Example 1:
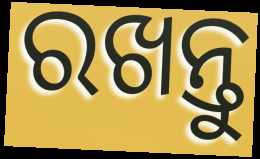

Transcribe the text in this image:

ରଖନ୍ତୁ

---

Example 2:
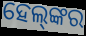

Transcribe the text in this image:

ହେଲ୍‌ଙ୍କର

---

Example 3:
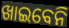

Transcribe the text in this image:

ଖାଇବେନି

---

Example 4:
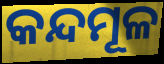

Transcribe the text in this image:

କନ୍ଦମୂଳ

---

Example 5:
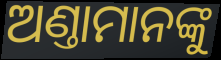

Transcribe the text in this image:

ଅଣ୍ତାମାନଙ୍କୁ